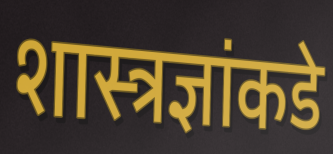
शास्त्रज्ञांकडे